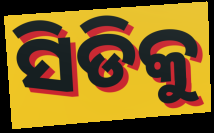
ସିଡିକୁ